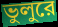
ভুলুরে